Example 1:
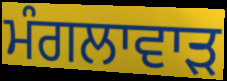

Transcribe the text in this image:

ਮੰਗਲਾਵਾੜ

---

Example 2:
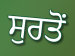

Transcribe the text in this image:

ਸੁਰਤੋਂ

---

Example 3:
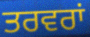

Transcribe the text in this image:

ਤਰਵਰਾਂ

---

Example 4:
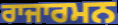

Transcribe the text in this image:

ਰਾਜਾਰਮਨ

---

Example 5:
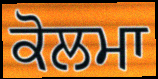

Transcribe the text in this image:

ਕੋਲਮਾ